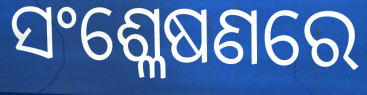
ସଂଶ୍ଳେଷଣରେ